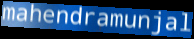
mahendramunjal